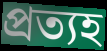
প্রত্যহ